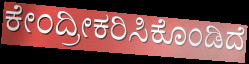
ಕೇಂದ್ರೀಕರಿಸಿಕೊಂಡಿದೆ